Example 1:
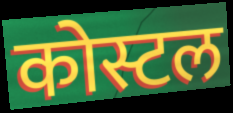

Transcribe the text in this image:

कोस्टल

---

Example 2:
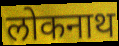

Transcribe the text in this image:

लोकनाथ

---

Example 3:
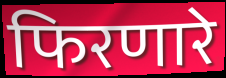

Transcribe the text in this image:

फिरणारे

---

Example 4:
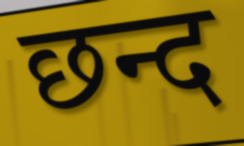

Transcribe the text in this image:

छन्द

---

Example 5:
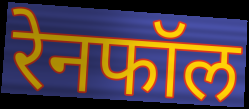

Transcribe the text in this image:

रेनफॉल